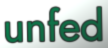
unfed